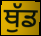
ਥੁੱਡ